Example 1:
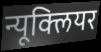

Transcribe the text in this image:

न्यूक्लियर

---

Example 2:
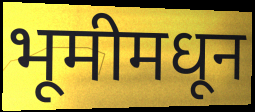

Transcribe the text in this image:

भूमीमधून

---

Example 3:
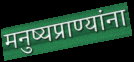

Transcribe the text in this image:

मनुष्यप्राण्यांना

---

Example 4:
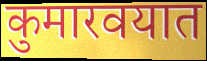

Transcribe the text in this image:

कुमारवयात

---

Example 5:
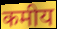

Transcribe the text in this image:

कमीय